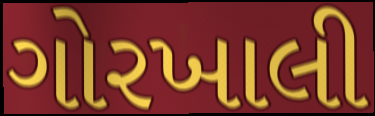
ગોરખાલી